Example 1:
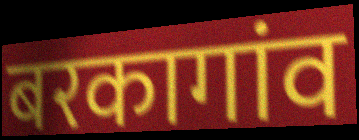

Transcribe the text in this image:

बरकागांव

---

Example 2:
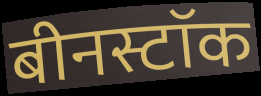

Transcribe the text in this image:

बीनस्टॉक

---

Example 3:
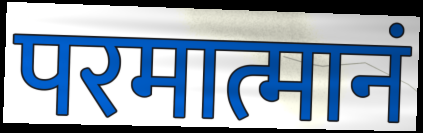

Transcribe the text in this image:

परमात्मानं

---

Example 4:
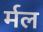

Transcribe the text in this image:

र्मल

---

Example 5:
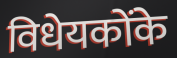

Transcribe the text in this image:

विधेयकोंके